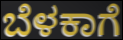
ಬೆಳಕಾಗೆ